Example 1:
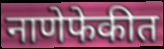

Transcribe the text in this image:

नाणेफेकीत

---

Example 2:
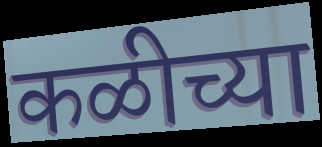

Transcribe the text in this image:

कळीच्या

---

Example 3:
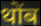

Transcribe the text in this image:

थोंब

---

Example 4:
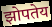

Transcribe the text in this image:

झोपतेय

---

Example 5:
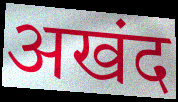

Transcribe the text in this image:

अखंद